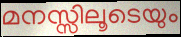
മനസ്സിലൂടെയും